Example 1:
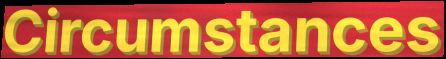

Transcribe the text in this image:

Circumstances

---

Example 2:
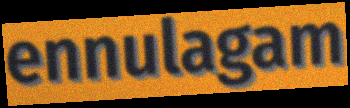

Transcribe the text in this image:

ennulagam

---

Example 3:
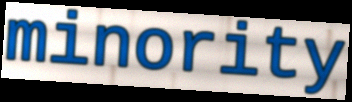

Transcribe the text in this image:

minority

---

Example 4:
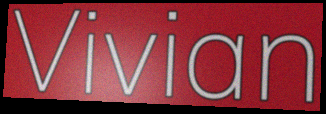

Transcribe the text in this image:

Vivian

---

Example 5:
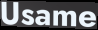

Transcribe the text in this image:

Usame